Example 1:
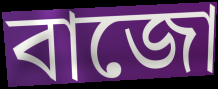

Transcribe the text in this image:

বাজো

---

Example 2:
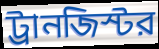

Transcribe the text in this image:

ট্রানজিস্টর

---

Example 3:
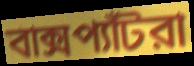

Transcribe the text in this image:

বাক্সপ্যাঁটরা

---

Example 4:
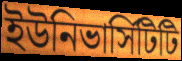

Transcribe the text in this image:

ইউনিভার্সিটিটি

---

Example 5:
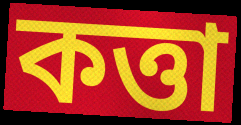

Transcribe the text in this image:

কত্তা